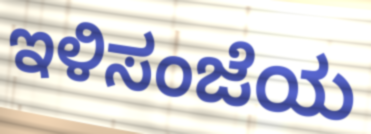
ಇಳಿಸಂಜೆಯ